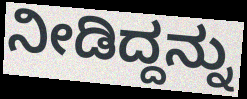
ನೀಡಿದ್ದನ್ನು